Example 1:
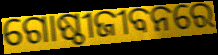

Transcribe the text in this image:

ଗୋଷ୍ଠୀଜୀବନରେ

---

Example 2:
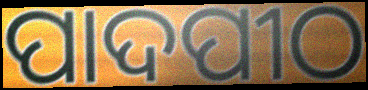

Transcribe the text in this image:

ପାଦପୀଠ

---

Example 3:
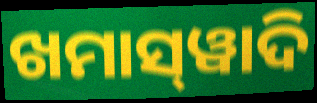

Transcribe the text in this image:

ଖମାସ୍‌ୱାଦି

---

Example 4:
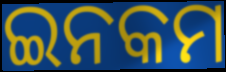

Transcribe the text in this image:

ଇନକମ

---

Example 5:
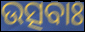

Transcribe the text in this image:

ଉତ୍ସବାଃ